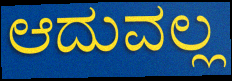
ಆದುವಲ್ಲ